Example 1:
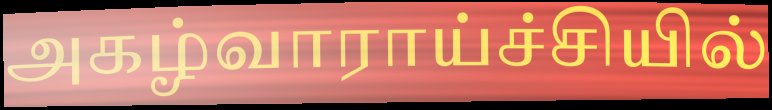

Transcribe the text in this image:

அகழ்வாராய்ச்சியில்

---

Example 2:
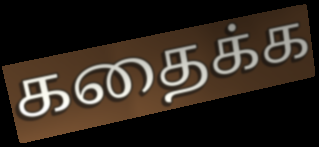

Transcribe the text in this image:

கதைக்க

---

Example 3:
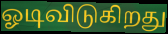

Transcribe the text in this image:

ஓடிவிடுகிறது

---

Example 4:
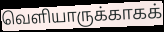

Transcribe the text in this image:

வெளியாருக்காகக்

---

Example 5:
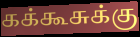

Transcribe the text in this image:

கக்கூசுக்கு